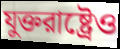
যুক্তরাষ্ট্রেও